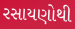
રસાયણોથી